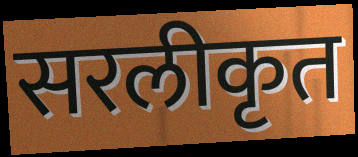
सरलीकृत